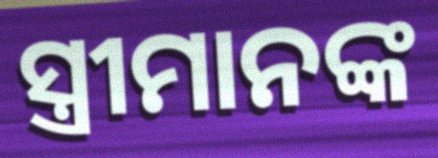
ସ୍ତ୍ରୀମାନଙ୍କ